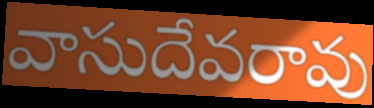
వాసుదేవరావు